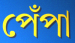
পেঁপা